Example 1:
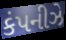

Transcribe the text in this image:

કંપનીઝે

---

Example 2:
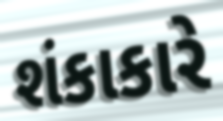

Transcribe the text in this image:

શંકાકારે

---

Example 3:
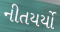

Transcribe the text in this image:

નીતયર્યો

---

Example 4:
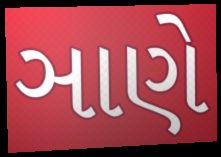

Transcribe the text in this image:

ઞાણે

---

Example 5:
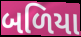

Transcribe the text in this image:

બળિયા